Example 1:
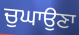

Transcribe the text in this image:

ਚੁਘਾਉਣਾ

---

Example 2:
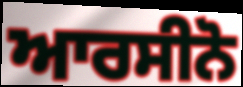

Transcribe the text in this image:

ਆਰਸੀਨੋ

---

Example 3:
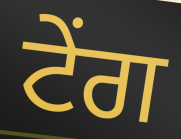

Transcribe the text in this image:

ਟੇਂਗ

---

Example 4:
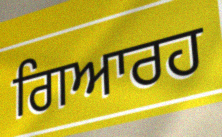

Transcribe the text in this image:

ਗਿਆਰਹ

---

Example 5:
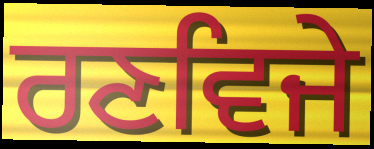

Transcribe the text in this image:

ਰਣਵਿਜੇ